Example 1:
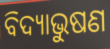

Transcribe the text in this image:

ବିଦ୍ୟାଭୁଷଣ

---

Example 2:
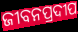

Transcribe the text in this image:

ଜୀବନପ୍ରଦୀପ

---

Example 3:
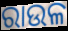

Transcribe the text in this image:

ରାଉଳ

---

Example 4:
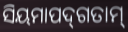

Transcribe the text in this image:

ସିୟମାପଦ୍‌ଗତାମ୍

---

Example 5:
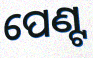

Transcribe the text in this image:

ପେଣ୍ଟ